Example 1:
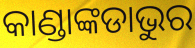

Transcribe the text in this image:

କାଣ୍ଡାଙ୍କଡାଭୁର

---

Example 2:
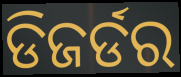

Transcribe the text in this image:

ଡିଜର୍ଡର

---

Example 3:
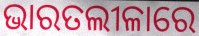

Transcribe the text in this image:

ଭାରତଲୀଳାରେ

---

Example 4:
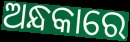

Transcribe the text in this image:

ଅନ୍ଧକାରେ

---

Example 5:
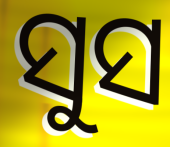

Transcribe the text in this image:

ସୁସ